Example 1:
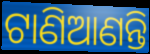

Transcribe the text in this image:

ଟାଣିଆଣନ୍ତି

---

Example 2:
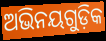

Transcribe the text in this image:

ଅଭିନୟଗୁଡ଼ିକ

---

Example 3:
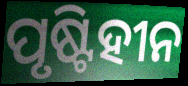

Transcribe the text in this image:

ପୃଷ୍ଟିହୀନ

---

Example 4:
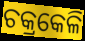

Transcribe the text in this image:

ଚକ୍ରକେଳି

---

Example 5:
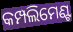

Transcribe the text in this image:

କମ୍ପଲିମେଣ୍ଟ